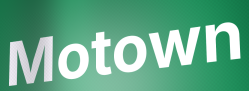
Motown